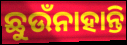
ଛୁଉଁନାହାନ୍ତି